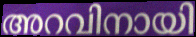
അറവിനായി